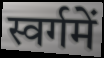
स्वर्गमें